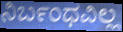
ನಿರ್ಬಂಧವಿಲ್ಲ